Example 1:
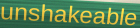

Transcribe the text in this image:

unshakeable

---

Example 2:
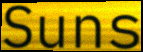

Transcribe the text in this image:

Suns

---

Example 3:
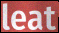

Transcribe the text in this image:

leat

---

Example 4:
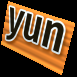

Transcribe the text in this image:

yun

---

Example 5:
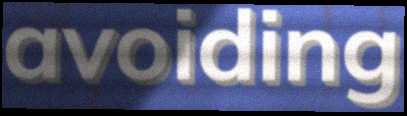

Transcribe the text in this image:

avoiding